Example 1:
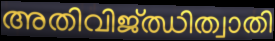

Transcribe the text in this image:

അതിവിജ്ഝിത്വാതി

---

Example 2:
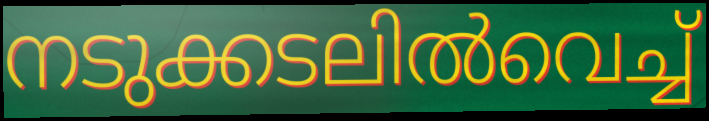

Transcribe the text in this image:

നടുക്കടലിൽവെച്ച്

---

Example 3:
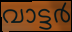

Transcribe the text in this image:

വാട്ടർ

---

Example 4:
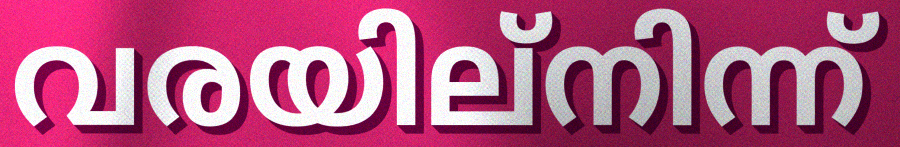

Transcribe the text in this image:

വരയില്നിന്ന്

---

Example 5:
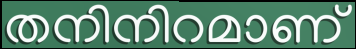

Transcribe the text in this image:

തനിനിറമാണ്